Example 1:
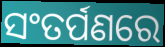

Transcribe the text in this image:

ସଂତର୍ପଣରେ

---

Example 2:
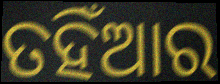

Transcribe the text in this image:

ତହିଁଆର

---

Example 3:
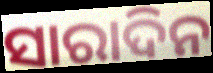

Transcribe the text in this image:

ସାରାଦିନ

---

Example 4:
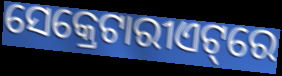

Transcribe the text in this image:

ସେକ୍ରେଟାରୀଏଟ୍‌ରେ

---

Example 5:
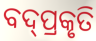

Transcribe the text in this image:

ବଦ୍‌ପ୍ରକୃତି